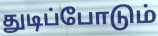
துடிப்போடும்